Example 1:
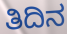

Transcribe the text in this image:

ತಿದಿನ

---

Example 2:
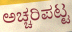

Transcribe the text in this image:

ಅಚ್ಚರಿಪಟ್ಟ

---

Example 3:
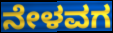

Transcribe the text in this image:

ನೇಳವಗ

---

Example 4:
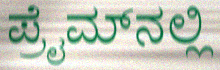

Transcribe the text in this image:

ಪ್ರೈಮ್‌ನಲ್ಲಿ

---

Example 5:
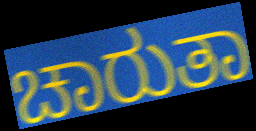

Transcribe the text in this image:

ಚಾರುತಾ